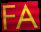
FA